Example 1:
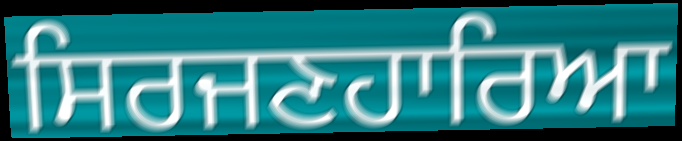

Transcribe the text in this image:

ਸਿਰਜਣਹਾਰਿਆ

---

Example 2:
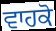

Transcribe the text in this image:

ਵਾਹਕੋ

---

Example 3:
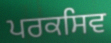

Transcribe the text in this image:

ਪਰਕਸਿਵ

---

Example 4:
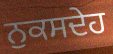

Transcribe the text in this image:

ਨੁਕਸਦੇਹ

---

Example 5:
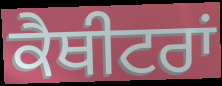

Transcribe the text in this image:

ਕੈਥੀਟਰਾਂ